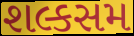
શલ્કસમ